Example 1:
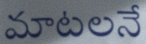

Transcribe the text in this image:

మాటలనే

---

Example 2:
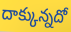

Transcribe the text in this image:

దాక్కున్నదో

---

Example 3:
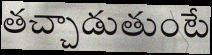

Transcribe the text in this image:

తచ్చాడుతుంటే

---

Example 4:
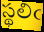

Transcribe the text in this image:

స్థలిఁ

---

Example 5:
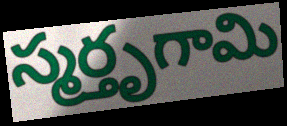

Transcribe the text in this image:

స్మర్తృగామి